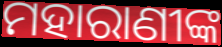
ମହାରାଣୀଙ୍କ